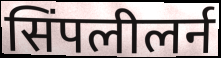
सिंपलीलर्न